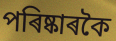
পৰিষ্কাৰকৈ